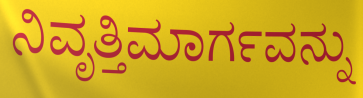
ನಿವೃತ್ತಿಮಾರ್ಗವನ್ನು